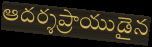
ఆదర్శప్రాయుడైన